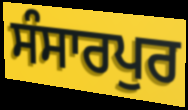
ਸੰਸਾਰਪੁਰ